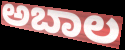
ಅಬಾಲ